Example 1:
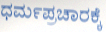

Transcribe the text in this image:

ಧರ್ಮಪ್ರಚಾರಕ್ಕೆ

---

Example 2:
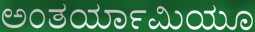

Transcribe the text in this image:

ಅಂತರ್ಯಾಮಿಯೂ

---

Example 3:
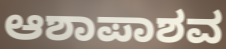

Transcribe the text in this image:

ಆಶಾಪಾಶವ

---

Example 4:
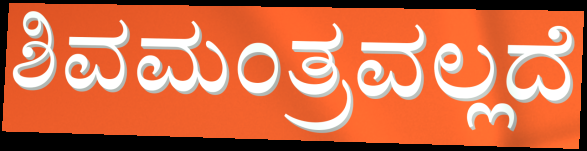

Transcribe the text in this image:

ಶಿವಮಂತ್ರವಲ್ಲದೆ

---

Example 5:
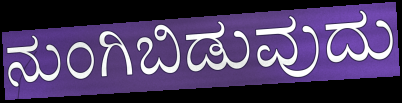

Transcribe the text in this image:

ನುಂಗಿಬಿಡುವುದು